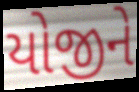
યોજીને